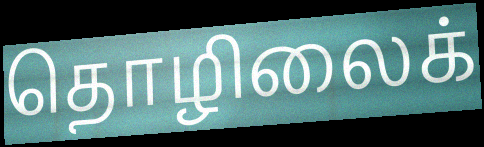
தொழிலைக்